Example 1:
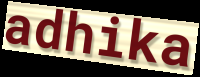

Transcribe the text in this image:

adhika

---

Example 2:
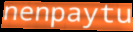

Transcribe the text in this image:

nenpaytu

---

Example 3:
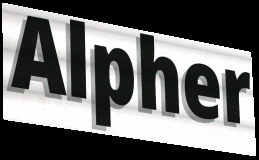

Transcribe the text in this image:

Alpher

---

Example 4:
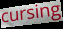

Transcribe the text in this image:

cursing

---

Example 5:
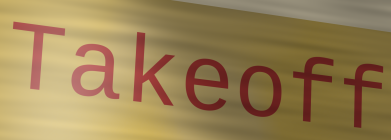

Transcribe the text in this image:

Takeoff